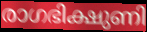
രാഗഭിക്ഷുണി